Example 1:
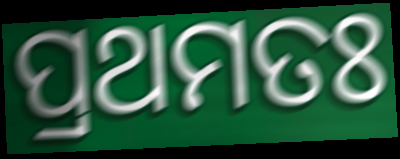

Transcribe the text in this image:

ପ୍ରଥମତଃ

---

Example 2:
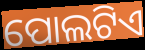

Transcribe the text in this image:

ପୋଲଟିଏ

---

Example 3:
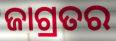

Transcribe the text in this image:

ଜାଗ୍ରତର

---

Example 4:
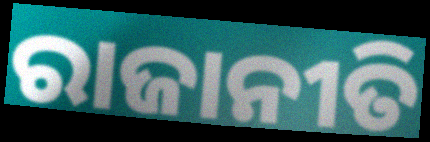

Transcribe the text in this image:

ରାଜାନୀତି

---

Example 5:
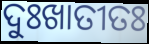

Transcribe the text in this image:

ଦୁଃଖାତୀତଃ